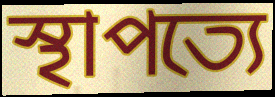
স্থাপত্যে